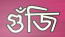
গুঁজি